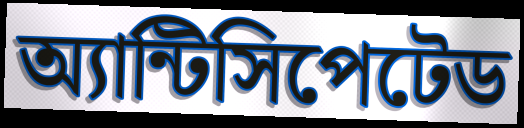
অ্যান্টিসিপেটেড